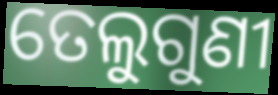
ତେଲୁଗୁଣୀ